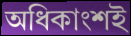
অধিকাংশই